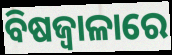
ବିଷଜ୍ୱାଳାରେ